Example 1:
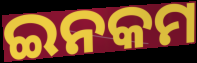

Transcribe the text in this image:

ଇନକମ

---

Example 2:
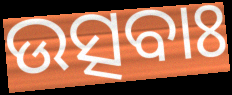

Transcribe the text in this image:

ଉତ୍ସବାଃ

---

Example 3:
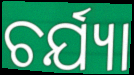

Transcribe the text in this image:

ଚର୍ଯ୍ଯା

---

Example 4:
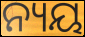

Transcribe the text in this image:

ନ୍ୟୟ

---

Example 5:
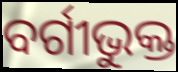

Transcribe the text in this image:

ବର୍ଗୀଭୁକ୍ତ